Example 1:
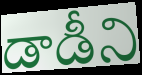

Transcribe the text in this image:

డాడీని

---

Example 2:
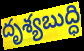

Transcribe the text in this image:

దృశ్యబుద్ధి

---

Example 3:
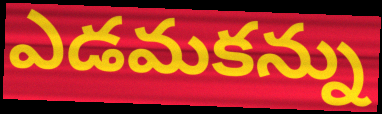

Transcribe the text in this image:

ఎడమకన్ను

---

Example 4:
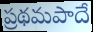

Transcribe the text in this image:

ప్రథమపాదే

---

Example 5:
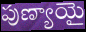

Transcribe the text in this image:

పుణ్యాయై